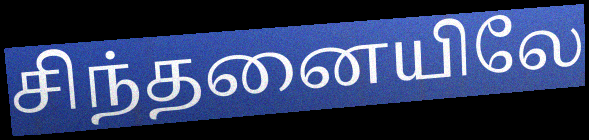
சிந்தனையிலே